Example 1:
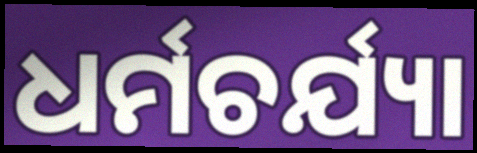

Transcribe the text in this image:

ଧର୍ମଚର୍ଯ୍ୟା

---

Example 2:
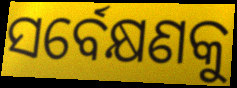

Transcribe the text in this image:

ସର୍ବେକ୍ଷଣକୁ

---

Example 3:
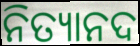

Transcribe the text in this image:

ନିତ୍ୟାନଦ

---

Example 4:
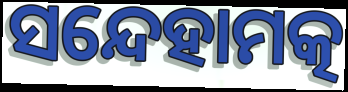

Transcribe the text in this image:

ସନ୍ଦେହାମତ୍କ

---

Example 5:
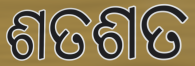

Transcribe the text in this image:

ଶତଶତ